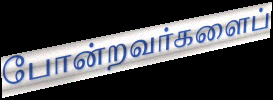
போன்றவர்களைப்